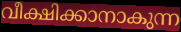
വീക്ഷിക്കാനാകുന്ന